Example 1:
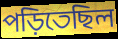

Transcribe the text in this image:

পড়িতেছিল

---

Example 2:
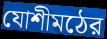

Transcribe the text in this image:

যোশীমঠের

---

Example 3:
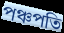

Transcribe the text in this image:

পঞ্চপতি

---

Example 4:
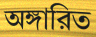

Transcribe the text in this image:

অঙ্গারিত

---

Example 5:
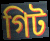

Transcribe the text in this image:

গিট